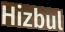
Hizbul